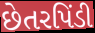
છેતરપિંડી